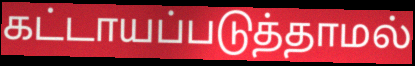
கட்டாயப்படுத்தாமல்